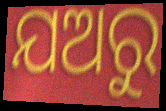
ଯଅରୁ